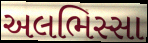
અલભિસ્સા